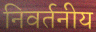
निवर्तनीय